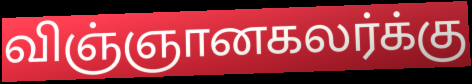
விஞ்ஞானகலர்க்கு